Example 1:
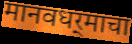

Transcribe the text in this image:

मानवधर्माचा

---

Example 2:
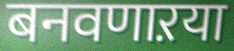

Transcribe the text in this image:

बनवणाऱया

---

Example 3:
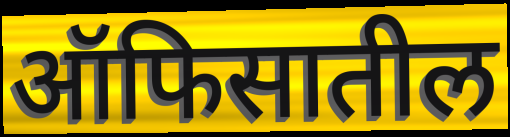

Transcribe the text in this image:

ऑफिसातील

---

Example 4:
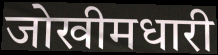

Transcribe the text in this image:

जोखीमधारी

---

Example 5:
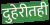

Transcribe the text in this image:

दुहेरीतही